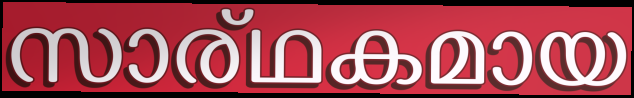
സാര്ഥകമായ